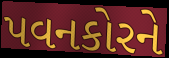
પવનકોરને